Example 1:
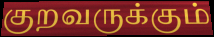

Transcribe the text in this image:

குறவருக்கும்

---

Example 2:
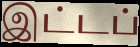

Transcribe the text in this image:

இட்டப்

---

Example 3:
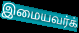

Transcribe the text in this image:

இமையவர்க்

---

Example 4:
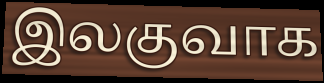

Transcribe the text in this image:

இலகுவாக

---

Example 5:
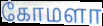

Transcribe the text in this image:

கோமளா